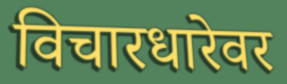
विचारधारेवर